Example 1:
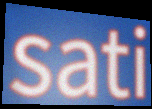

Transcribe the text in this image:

sati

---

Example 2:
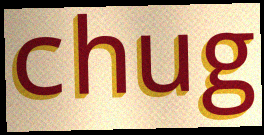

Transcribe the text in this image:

chug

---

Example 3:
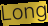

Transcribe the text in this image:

Long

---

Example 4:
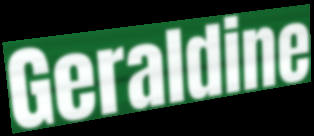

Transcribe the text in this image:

Geraldine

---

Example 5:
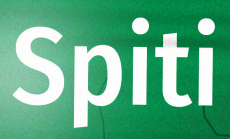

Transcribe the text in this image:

Spiti